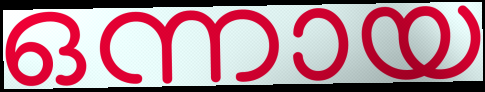
ഒന്നായ